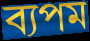
ব্যপম